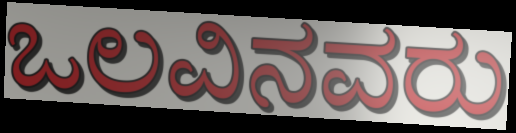
ಒಲವಿನವರು